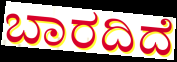
ಬಾರದಿದೆ